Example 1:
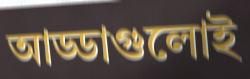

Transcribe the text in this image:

আড্ডাগুলোই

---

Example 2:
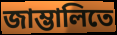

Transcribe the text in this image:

জাম্ভালিতে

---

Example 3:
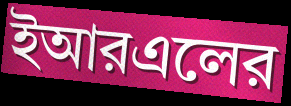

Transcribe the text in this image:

ইআরএলের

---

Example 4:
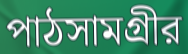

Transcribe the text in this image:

পাঠসামগ্রীর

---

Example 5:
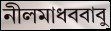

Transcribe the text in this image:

নীলমাধববাবু